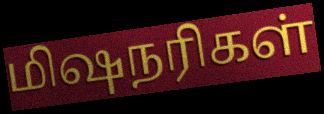
மிஷநரிகள்